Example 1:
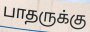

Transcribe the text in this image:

பாதருக்கு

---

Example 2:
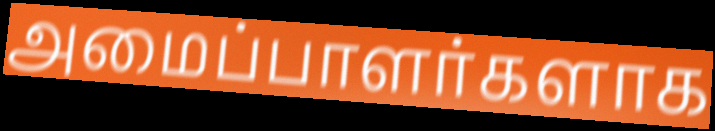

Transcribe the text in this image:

அமைப்பாளர்களாக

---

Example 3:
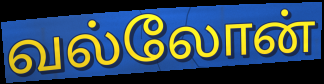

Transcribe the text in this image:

வல்லோன்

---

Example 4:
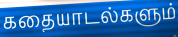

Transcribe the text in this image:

கதையாடல்களும்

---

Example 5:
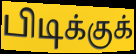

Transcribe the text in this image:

பிடிக்குக்